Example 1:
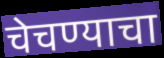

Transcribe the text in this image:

चेचण्याचा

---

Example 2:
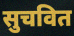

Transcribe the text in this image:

सुचवित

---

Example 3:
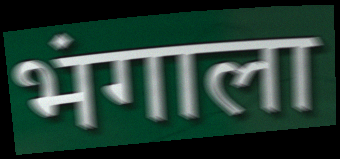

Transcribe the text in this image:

भंगाला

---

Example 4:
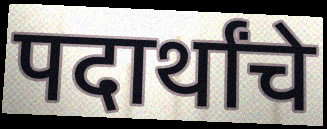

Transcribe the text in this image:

पदार्थांचे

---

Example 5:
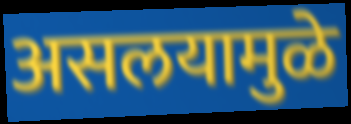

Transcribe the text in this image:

असलयामुळे